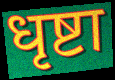
धृष्टा